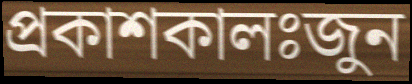
প্রকাশকালঃজুন